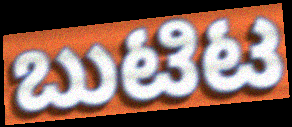
ಬುಟಿಟ